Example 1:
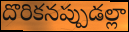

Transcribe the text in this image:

దొరికనప్పుడల్లా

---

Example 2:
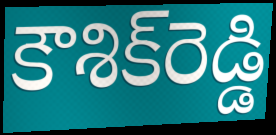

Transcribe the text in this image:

కౌశిక్‌రెడ్డి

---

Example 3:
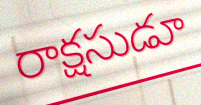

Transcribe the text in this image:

రాక్షసుడూ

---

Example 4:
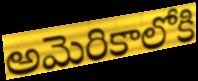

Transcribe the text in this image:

అమెరికాలోకి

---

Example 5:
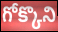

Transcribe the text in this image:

గోక్కొని